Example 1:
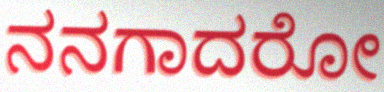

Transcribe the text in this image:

ನನಗಾದರೋ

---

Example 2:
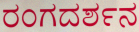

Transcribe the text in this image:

ರಂಗದರ್ಶನ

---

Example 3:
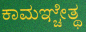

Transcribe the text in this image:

ಕಾಮಞ್ಚೇತ್ಥ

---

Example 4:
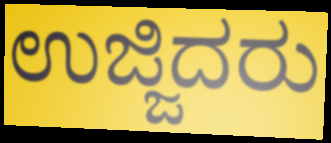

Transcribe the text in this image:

ಉಜ್ಜಿದರು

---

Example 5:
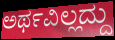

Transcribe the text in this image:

ಅರ್ಥವಿಲ್ಲದ್ದು